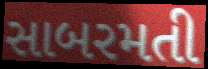
સાબરમતી